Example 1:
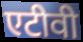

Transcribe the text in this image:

एटीवी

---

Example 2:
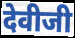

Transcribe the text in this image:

देवीजी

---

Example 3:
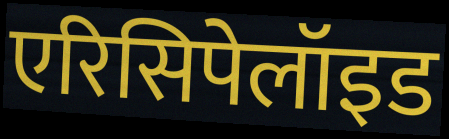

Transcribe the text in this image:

एरिसिपेलॉइड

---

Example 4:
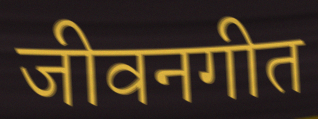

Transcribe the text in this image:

जीवनगीत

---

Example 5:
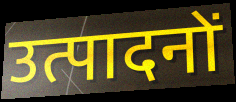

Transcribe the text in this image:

उत्पादनों